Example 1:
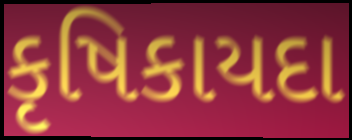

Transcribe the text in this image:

કૃષિકાયદા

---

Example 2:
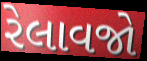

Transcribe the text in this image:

રેલાવજો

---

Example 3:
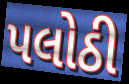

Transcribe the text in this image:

પલોઠી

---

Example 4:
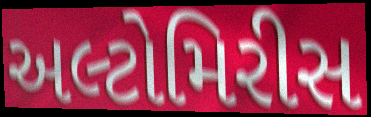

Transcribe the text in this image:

અલ્ટોમિરીસ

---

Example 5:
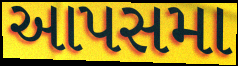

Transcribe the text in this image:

આપસમા